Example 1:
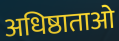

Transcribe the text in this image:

अधिष्ठाताओ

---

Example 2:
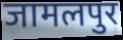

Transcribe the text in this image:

जामलपुर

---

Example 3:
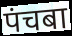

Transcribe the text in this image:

पंचबा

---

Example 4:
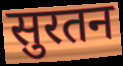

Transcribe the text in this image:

सुरतन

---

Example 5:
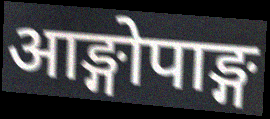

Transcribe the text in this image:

आङ्गोपाङ्ग